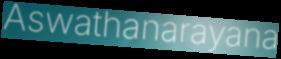
Aswathanarayana